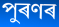
পুৰণৰ